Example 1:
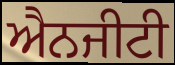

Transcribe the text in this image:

ਐਨਜੀਟੀ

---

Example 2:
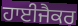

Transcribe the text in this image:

ਹਾਈਜੈਕਰ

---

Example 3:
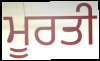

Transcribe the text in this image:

ਮੂਰਤੀ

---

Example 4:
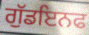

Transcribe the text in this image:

ਗੁੱਡਇਨਫ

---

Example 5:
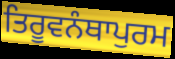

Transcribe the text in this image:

ਤਿਰੂਵਨੰਥਾਪੁਰਮ